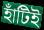
হাঁটিই